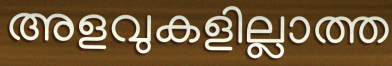
അളവുകളില്ലാത്ത